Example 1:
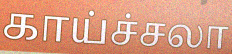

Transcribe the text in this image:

காய்ச்சலா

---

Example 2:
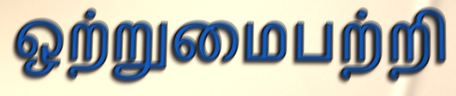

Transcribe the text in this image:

ஒற்றுமைபற்றி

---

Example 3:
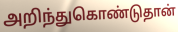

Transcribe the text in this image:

அறிந்துகொண்டுதான்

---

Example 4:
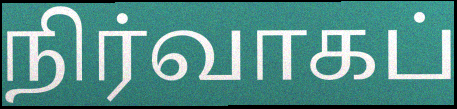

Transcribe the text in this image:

நிர்வாகப்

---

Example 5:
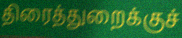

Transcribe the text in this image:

திரைத்துறைக்குச்